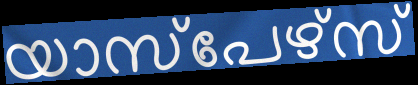
യാസ്പേഴ്സ്